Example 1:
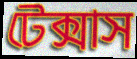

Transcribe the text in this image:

টেক্সাস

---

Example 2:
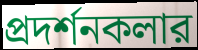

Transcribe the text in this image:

প্রদর্শনকলার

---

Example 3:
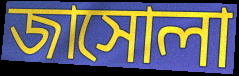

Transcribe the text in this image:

জাসোলা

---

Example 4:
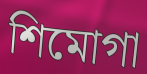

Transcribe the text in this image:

শিমোগা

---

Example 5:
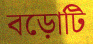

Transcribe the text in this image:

বড়োটি